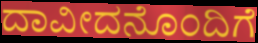
ದಾವೀದನೊಂದಿಗೆ